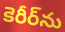
కెరీర్‌ను